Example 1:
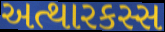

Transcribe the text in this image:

અત્થારકસ્સ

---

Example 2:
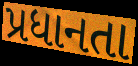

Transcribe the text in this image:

પ્રધાનતા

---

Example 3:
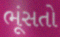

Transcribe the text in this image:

ભૂંસતો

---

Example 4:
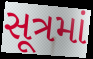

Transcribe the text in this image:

સૂત્રમાં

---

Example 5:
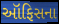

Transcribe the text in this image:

ઑફિસના